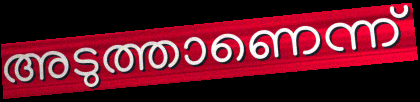
അടുത്താണെന്ന്